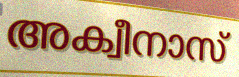
അക്വീനാസ്